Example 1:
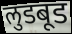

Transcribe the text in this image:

लुडबूड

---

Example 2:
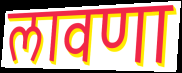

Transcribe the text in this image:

लावणा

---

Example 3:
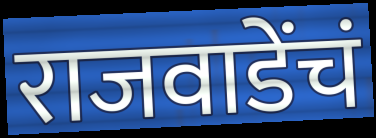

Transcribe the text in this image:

राजवाडेंचं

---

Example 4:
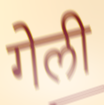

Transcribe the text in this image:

गेली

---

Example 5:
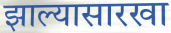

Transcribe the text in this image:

झाल्यासारखा